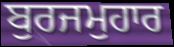
ਬੁਰਜਮੁਹਾਰ